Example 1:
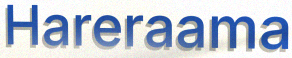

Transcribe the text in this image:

Hareraama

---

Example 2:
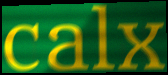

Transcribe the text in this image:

calx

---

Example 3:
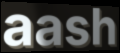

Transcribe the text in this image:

aash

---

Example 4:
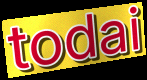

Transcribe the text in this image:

todai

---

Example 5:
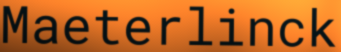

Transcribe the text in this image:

Maeterlinck